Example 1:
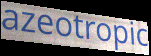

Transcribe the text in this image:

azeotropic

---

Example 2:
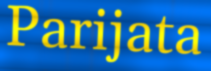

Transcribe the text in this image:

Parijata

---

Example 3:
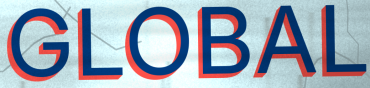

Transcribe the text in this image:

GLOBAL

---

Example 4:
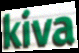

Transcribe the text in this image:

kiva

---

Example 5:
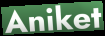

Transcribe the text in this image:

Aniket